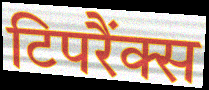
टिपरैंक्स